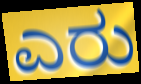
ಎರು